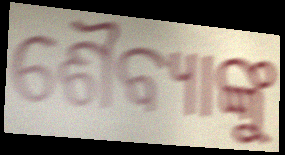
ଶୈବ୍ୟାଙ୍କୁ